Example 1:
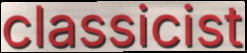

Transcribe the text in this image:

classicist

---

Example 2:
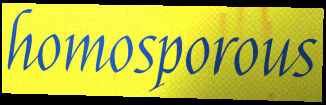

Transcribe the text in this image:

homosporous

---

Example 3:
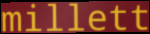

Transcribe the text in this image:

millett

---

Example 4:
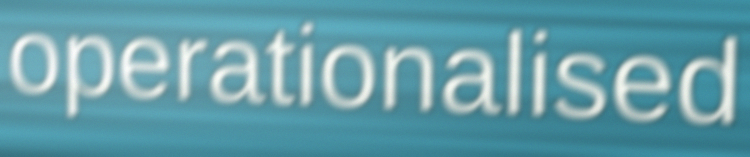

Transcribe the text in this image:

operationalised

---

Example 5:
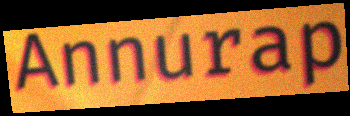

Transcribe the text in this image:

Annurap